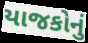
યાજકોનું